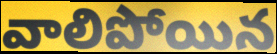
వాలిపోయిన